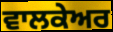
ਵਾਲਕੇਅਰ